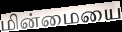
மின்மையை